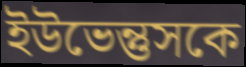
ইউভেন্তুসকে